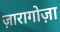
ज़ारागोज़ा